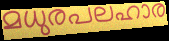
മധുരപലഹാര